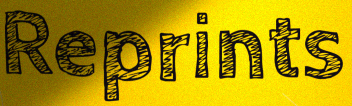
Reprints